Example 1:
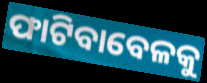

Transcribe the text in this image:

ଫାଟିବାବେଳକୁ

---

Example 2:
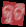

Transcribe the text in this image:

କୁଟି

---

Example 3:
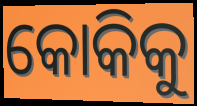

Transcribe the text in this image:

କୋକିକୁ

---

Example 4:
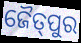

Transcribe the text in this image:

ଜୈତ୍‌ପୁର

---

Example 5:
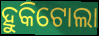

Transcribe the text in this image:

ହୁକିଟୋଲା